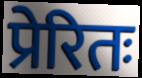
प्रेरितः